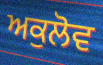
ਅਕੁਲੋਵ